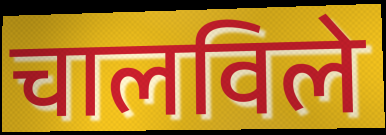
चालविले